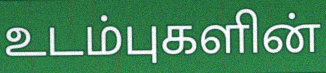
உடம்புகளின்